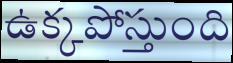
ఉక్కపోస్తుంది